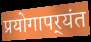
प्रयोगापर्यंत